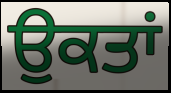
ਉਕਤਾਂ